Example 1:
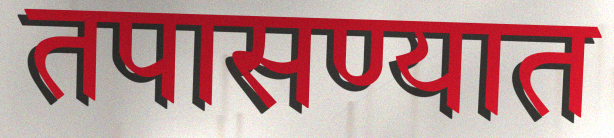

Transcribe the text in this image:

तपासण्यात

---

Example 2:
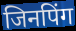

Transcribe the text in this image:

जिनपिंग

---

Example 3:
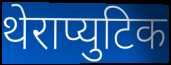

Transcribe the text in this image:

थेराप्युटिक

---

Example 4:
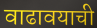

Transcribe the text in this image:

वाढावयाची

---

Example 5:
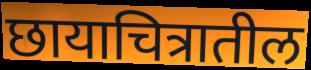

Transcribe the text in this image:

छायाचित्रातील